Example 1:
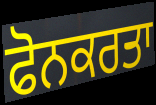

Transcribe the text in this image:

ਫੋਨਕਰਤਾ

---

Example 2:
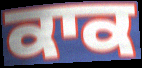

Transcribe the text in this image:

ਕਾਕ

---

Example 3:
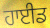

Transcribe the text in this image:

ਹਾਈਡ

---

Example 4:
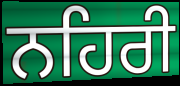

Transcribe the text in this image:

ਨਹਿਰੀ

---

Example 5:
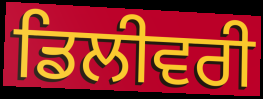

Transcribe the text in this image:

ਡਿਲੀਵਰੀ